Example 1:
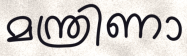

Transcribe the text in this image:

മന്ത്രിണാ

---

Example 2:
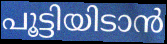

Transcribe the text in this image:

പൂട്ടിയിടാൻ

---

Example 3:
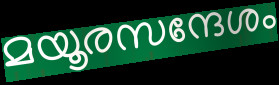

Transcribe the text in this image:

മയൂരസന്ദേശം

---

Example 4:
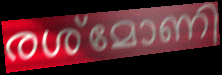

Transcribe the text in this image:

രശ്മോണി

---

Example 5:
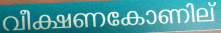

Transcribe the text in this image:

വീക്ഷണകോണില്